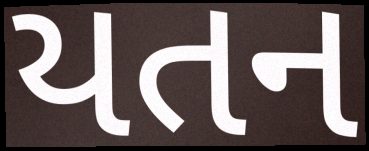
યતન